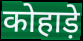
कोहाड़े